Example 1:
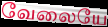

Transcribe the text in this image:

வேலையே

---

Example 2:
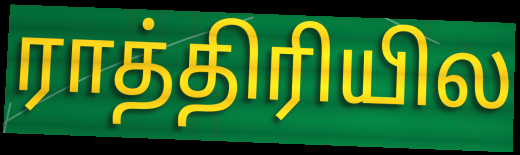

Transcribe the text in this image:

ராத்திரியில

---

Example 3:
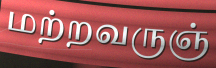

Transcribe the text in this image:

மற்றவருஞ்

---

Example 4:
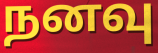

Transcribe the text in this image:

நனவு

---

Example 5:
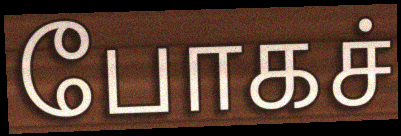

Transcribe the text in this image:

போகச்